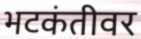
भटकंतीवर